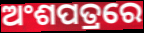
ଅଂଶପତ୍ରରେ